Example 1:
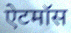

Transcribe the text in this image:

ऐटमॉस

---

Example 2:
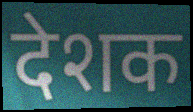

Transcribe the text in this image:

देशक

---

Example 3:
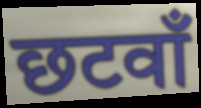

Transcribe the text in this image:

छटवाँ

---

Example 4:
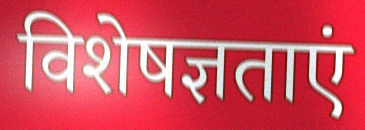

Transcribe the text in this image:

विशेषज्ञताएं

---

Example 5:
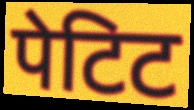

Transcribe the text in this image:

पेटिट